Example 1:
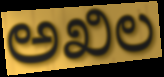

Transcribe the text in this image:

ಅಖಿಲ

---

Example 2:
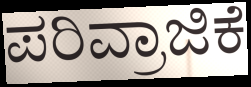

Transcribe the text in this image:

ಪರಿವ್ರಾಜಿಕೆ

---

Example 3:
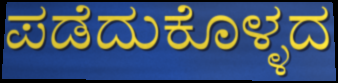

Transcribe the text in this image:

ಪಡೆದುಕೊಳ್ಳದ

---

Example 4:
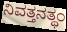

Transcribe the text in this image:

ನಿವತ್ತನತ್ಥಂ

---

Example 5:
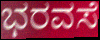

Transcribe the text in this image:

ಭರವಸೆ